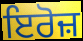
ਇਰੋਜ਼